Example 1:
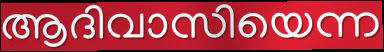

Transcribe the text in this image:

ആദിവാസിയെന്ന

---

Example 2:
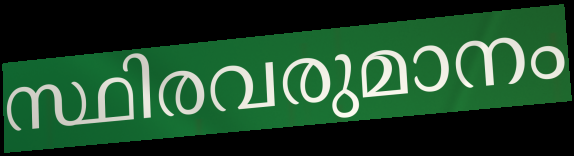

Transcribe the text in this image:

സ്ഥിരവരുമാനം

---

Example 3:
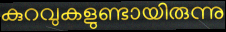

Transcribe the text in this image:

കുറവുകളുണ്ടായിരുന്നു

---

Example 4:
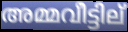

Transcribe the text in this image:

അമ്മവീട്ടില്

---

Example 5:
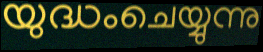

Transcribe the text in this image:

യുദ്ധംചെയ്യുന്നു